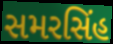
સમરસિંહ